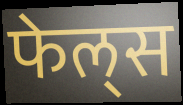
फेल्स